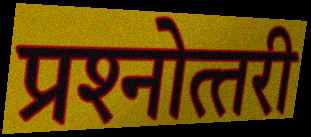
प्रश्‍नोत्‍तरी